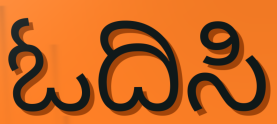
ಓದಿಸಿ